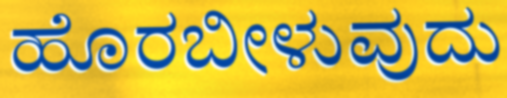
ಹೊರಬೀಳುವುದು